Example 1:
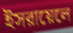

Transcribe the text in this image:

ইসরায়েলে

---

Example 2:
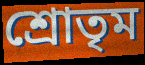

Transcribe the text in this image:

শ্রোতৃম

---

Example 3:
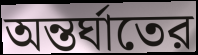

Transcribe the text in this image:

অন্তর্ঘাতের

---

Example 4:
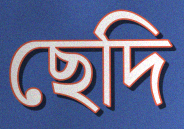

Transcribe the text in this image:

ছেদি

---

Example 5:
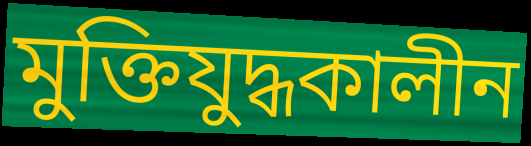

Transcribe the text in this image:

মুক্তিযুদ্ধকালীন